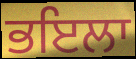
ਭਇਲਾ